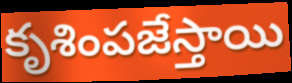
కృశింపజేస్తాయి